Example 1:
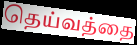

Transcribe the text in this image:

தெய்வத்தை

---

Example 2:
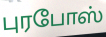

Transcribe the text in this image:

புரபோஸ்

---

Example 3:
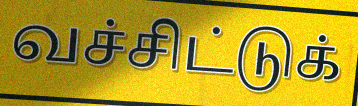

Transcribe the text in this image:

வச்சிட்டுக்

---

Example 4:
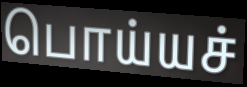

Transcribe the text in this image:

பொய்யச்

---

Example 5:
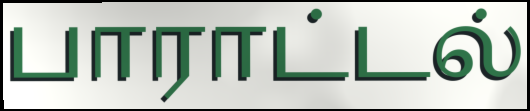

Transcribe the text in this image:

பாராட்டல்